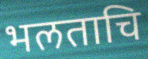
भलताचि